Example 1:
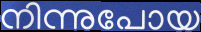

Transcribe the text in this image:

നിന്നുപോയ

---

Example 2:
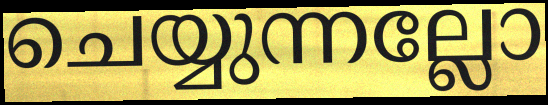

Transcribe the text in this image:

ചെയ്യുന്നല്ലോ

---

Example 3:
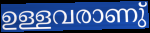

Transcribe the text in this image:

ഉള്ളവരാണു്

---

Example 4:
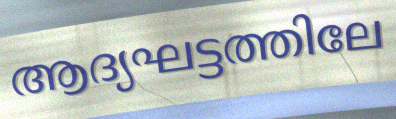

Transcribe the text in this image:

ആദ്യഘട്ടത്തിലേ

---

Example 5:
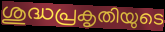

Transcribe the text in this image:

ശുദ്ധപ്രകൃതിയുടെ